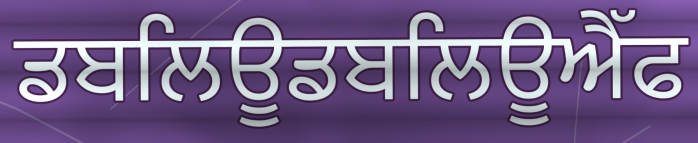
ਡਬਲਿਊਡਬਲਿਊਐੱਫ